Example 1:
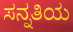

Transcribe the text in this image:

ಸನ್ನತಿಯ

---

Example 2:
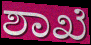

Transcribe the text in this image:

ಶಾಖೆ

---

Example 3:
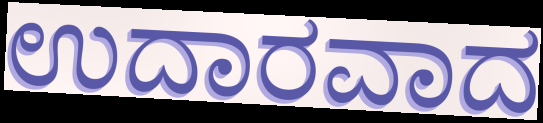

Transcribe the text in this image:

ಉದಾರವಾದ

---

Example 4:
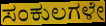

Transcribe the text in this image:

ಸಂಕುಲಗಳೇ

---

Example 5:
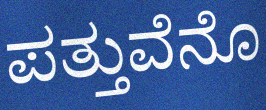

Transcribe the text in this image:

ಪತ್ತುವೆನೊ